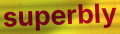
superbly